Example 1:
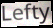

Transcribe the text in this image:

Lefty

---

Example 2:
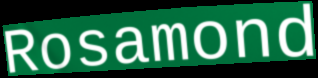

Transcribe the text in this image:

Rosamond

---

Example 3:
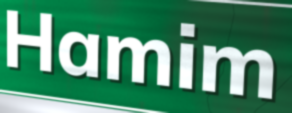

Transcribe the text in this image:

Hamim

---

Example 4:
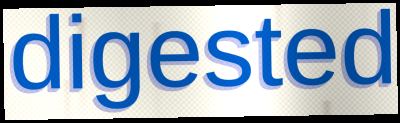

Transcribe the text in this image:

digested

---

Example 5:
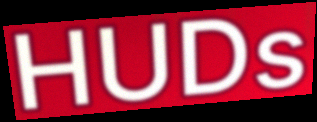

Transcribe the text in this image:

HUDs